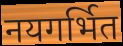
नयगर्भित